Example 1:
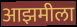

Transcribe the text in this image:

आझमीला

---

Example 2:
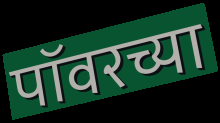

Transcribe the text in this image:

पॉवरच्या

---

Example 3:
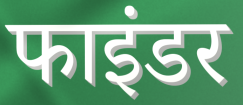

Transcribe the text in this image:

फाइंडर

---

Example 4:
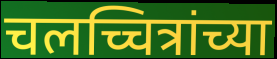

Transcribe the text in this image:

चलच्चित्रांच्या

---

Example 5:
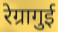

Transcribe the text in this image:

रेग्रागुई